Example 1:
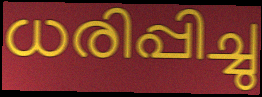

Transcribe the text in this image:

ധരിപ്പിച്ചു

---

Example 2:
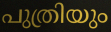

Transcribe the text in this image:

പുത്രിയും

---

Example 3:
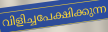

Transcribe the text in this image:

വിളിച്ചപേക്ഷിക്കുന്ന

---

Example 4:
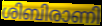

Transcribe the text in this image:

ശിബിരാണി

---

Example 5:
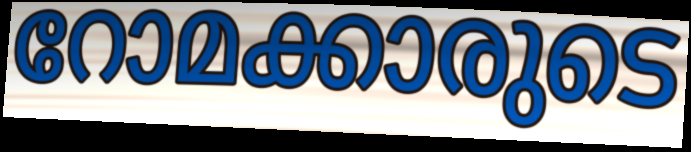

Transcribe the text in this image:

റോമക്കാരുടെ